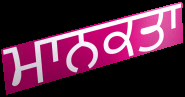
ਮਾਨਕਤਾ